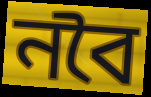
নবৈ